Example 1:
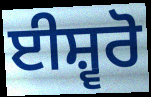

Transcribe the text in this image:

ਈਸ਼੍ਵਰੋ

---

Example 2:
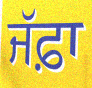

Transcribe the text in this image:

ਜੱਫ਼ਾ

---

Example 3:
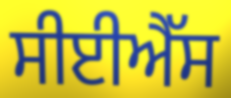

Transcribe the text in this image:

ਸੀਈਐੱਸ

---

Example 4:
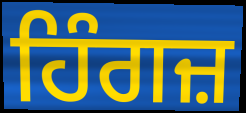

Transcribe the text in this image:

ਹਿੰਗਜ਼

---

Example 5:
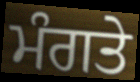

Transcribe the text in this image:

ਮੰਗਤੇ